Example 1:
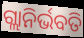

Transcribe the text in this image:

ଗ୍ଲାନିର୍ଭବତି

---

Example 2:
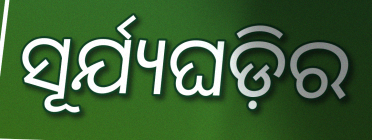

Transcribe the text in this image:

ସୂର୍ଯ୍ୟଘଡ଼ିର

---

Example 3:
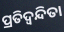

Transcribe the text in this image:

ପ୍ରତିଦ୍ଵନ୍ଦିତା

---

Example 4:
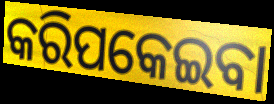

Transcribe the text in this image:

କରିପକେଇବା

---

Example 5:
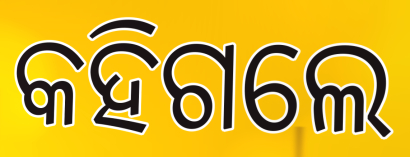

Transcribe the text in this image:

କହିଗଲେ